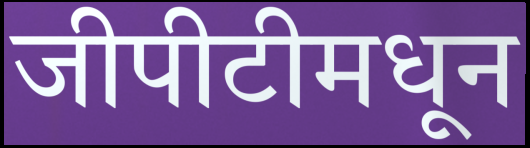
जीपीटीमधून